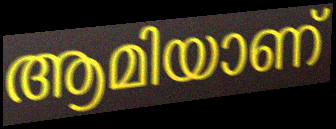
ആമിയാണ്